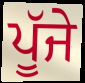
ਪੂੱਜੇ